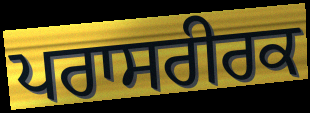
ਪਰਾਸਰੀਰਕ